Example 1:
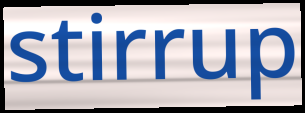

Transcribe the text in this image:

stirrup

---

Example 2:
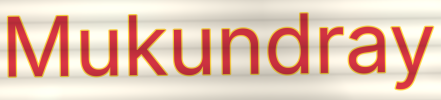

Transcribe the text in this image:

Mukundray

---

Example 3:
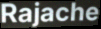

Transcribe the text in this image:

Rajache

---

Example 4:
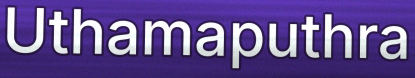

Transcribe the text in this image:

Uthamaputhra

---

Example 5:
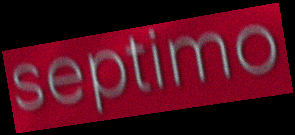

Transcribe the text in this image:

septimo